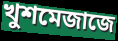
খুশমেজাজে